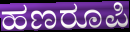
ಹಣರೂಪಿ